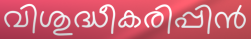
വിശുദ്ധീകരിപ്പിൻ